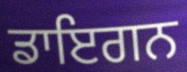
ਡਾਇਗਨ